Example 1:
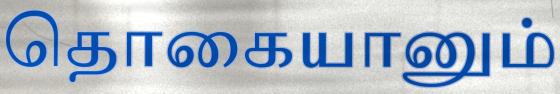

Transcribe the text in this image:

தொகையானும்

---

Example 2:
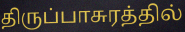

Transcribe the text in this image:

திருப்பாசுரத்தில்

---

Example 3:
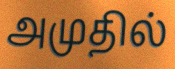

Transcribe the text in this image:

அமுதில்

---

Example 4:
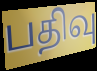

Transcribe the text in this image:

பதிவு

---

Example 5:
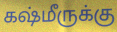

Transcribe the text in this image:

கஷ்மீருக்கு